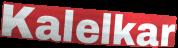
Kalelkar